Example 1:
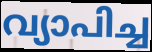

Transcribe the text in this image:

വ്യാപിച്ച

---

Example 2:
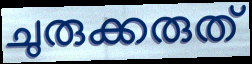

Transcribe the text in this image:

ചുരുക്കരുത്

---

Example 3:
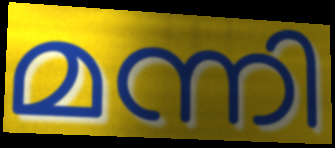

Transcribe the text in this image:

മന്നി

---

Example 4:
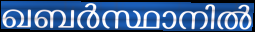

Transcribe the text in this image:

ഖബർസ്ഥാനിൽ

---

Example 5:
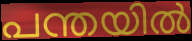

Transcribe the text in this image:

പന്തയിൽ